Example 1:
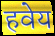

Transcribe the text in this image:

हवेय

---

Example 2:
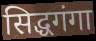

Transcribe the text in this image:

सिद्धगंगा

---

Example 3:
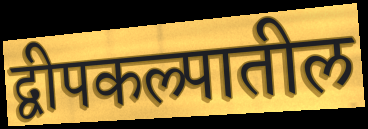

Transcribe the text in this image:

द्वीपकल्पातील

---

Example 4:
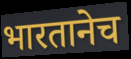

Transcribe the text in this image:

भारतानेच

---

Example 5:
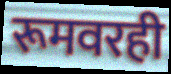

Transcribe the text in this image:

रूमवरही